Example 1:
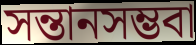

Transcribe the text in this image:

সন্তানসম্ভবা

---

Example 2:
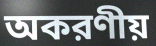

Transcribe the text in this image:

অকরণীয়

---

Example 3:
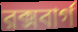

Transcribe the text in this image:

রক্সবার্গ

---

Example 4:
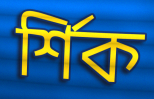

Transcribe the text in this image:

র্শিক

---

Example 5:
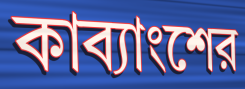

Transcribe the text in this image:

কাব্যাংশের